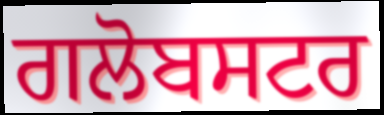
ਗਲੋਬਸਟਰ